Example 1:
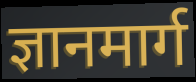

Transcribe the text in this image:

ज्ञानमार्ग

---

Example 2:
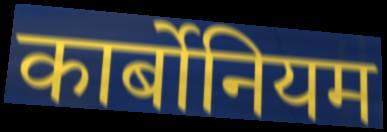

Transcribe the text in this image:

कार्बोनियम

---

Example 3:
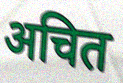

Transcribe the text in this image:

अचित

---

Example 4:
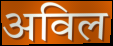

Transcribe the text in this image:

अविल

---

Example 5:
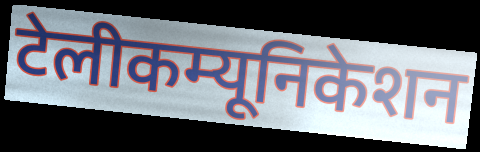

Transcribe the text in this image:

टेलीकम्यूनिकेशन